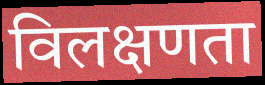
विलक्षणता